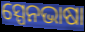
ସ୍ପେନଭାଷା